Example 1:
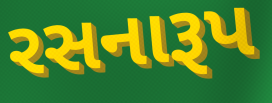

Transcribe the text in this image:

રસનારૂપ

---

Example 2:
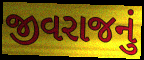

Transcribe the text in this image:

જીવરાજનું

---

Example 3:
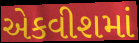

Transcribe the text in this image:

એકવીશમાં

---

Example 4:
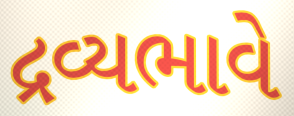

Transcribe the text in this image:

દ્રવ્યભાવે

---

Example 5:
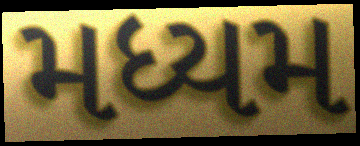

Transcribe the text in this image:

મધ્યમ